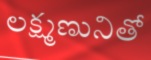
లక్ష్మణునితో